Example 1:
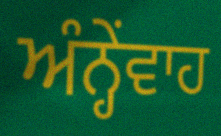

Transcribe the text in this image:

ਅੰਨ੍ਹੇਂਵਾਹ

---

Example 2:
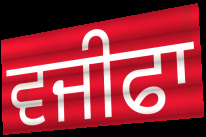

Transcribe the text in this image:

ਵਜੀਫਾ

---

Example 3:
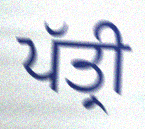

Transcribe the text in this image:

ਪੱਤ੍ਰੀ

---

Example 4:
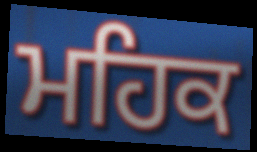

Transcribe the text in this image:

ਮਹਿਕ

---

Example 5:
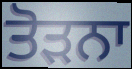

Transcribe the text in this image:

ਤੋੜਨਾ